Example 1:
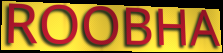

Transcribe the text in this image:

ROOBHA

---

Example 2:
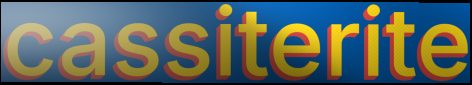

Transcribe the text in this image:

cassiterite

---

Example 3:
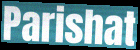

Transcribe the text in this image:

Parishat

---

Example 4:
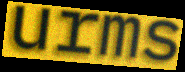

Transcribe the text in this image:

urms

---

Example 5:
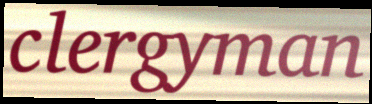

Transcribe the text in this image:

clergyman